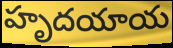
హృదయాయ